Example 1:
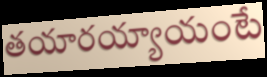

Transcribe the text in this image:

తయారయ్యాయంటే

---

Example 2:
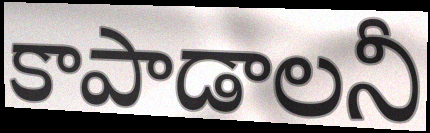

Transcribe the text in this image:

కాపాడాలనీ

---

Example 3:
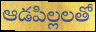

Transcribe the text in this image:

ఆడపిల్లలతో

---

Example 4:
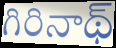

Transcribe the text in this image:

గిరినాథ్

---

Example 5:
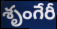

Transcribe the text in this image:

శృంగేరీ